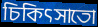
চিকিৎসাতো